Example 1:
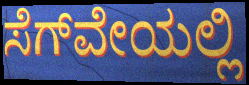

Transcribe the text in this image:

ಸೆಗ್‌ವೇಯಲ್ಲಿ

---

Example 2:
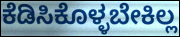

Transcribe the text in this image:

ಕೆಡಿಸಿಕೊಳ್ಳಬೇಕಿಲ್ಲ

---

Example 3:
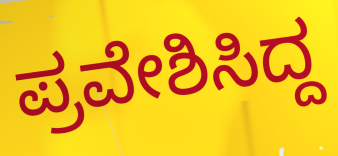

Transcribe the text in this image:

ಪ್ರವೇಶಿಸಿದ್ದ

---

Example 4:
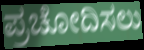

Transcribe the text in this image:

ಪ್ರಚೋದಿಸಲು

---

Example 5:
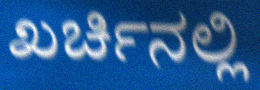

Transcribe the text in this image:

ಖರ್ಚಿನಲ್ಲಿ